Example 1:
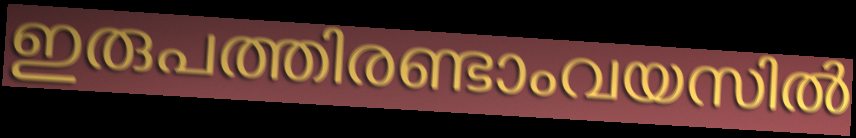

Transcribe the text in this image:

ഇരുപത്തിരണ്ടാംവയസിൽ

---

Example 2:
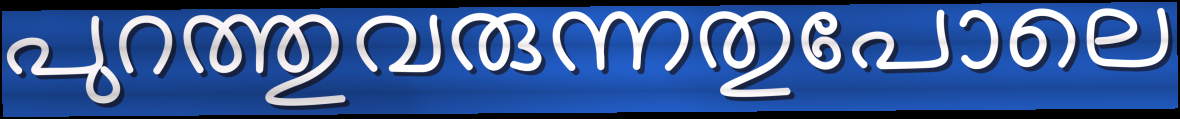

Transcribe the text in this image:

പുറത്തുവരുന്നതുപോലെ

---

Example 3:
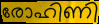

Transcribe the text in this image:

രോഹിണി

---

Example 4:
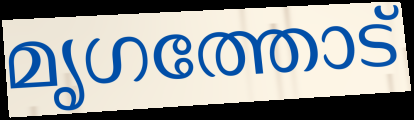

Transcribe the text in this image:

മൃഗത്തോട്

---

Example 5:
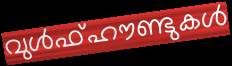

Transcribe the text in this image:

വുൾഫ്ഹൗണ്ടുകൾ